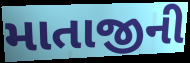
માતાજીની